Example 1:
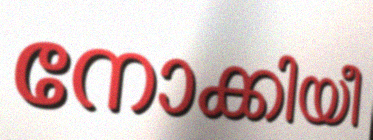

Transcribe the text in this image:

നോക്കിയീ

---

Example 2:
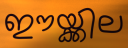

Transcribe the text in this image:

ഈയ്ക്കില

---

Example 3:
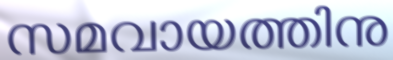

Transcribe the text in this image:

സമവായത്തിനു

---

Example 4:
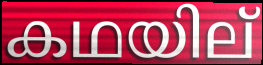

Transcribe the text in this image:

കഥയില്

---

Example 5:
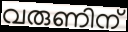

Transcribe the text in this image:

വരുണിന്